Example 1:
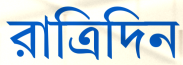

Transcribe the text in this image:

রাত্রিদিন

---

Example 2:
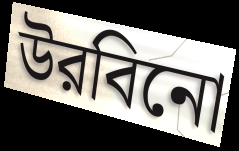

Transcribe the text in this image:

উরবিনো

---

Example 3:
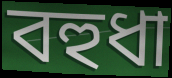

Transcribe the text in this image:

বহুধা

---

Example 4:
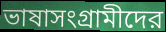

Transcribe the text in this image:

ভাষাসংগ্রামীদের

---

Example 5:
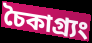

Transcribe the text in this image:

চৈকাগ্র্যং